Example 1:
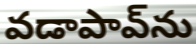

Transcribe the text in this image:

వడాపావ్‌ను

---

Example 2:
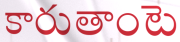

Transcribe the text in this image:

కారుతాంటె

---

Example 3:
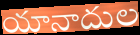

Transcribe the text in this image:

యానాదుల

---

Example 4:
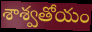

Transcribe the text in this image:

శాశ్వతోయం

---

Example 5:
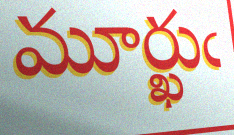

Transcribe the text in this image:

మూర్ఖుఁ